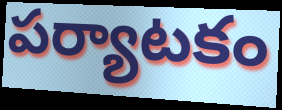
పర్యాటకం